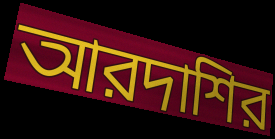
আরদাশির